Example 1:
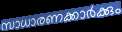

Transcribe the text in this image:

സാധാരണക്കാർക്കും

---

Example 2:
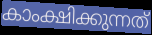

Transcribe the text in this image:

കാംക്ഷിക്കുന്നത്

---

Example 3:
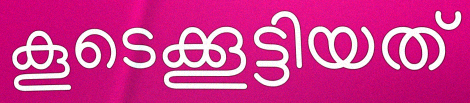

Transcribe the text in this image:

കൂടെക്കൂട്ടിയത്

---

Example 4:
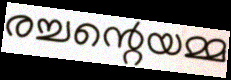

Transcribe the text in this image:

രച്ചന്റെയമ്മ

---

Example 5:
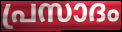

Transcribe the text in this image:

പ്രസാദം